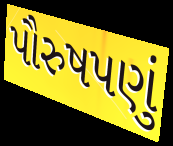
પૌરુષપણું